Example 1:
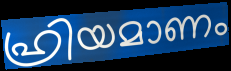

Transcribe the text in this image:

ഹ്രിയമാണം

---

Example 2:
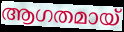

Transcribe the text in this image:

ആഗതമായ്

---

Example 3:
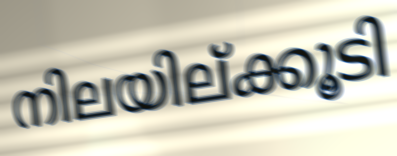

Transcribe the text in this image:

നിലയില്ക്കൂടി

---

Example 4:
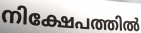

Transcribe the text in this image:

നിക്ഷേപത്തിൽ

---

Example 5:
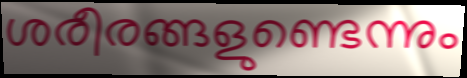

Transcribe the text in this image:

ശരീരങ്ങളുണ്ടെന്നും